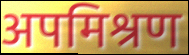
अपमिश्रण